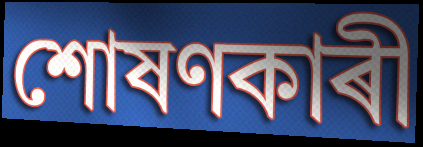
শোষণকাৰী